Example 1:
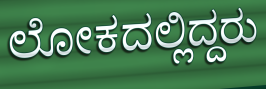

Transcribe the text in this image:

ಲೋಕದಲ್ಲಿದ್ದರು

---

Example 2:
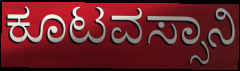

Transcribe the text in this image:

ಕೂಟವಸ್ಸಾನಿ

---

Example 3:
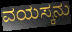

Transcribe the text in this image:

ವಯಸ್ಕನು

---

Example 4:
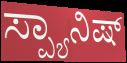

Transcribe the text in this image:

ಸ್ಪ್ಯಾನಿಷ್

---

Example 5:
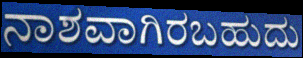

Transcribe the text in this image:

ನಾಶವಾಗಿರಬಹುದು